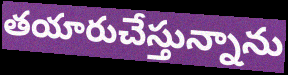
తయారుచేస్తున్నాను